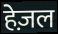
हेज़ल